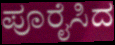
ಪೂರೈಸಿದ